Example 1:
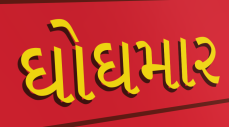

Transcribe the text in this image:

ઘોઘમાર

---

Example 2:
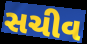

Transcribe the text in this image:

સચીવ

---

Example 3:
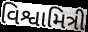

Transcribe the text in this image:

વિશ્વામિત્રી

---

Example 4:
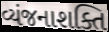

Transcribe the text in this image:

વ્યંજનાશક્તિ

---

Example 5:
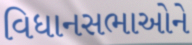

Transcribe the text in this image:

વિધાનસભાઓને